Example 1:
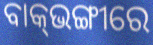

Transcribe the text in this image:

ବାକ୍‍ଭଙ୍ଗୀରେ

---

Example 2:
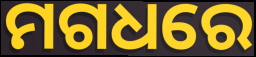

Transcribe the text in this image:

ମଗଧରେ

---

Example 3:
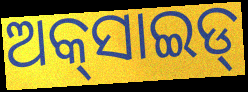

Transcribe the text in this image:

ଅକ୍‌ସାଇଡ୍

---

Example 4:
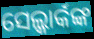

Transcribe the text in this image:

ସେଲ୍କାର୍କଙ୍କ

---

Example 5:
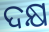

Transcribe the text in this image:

ଦକ୍ଷ